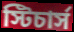
স্টিচার্স